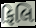
ફિલિ